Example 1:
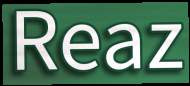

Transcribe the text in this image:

Reaz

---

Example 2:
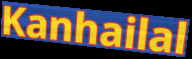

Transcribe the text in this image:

Kanhailal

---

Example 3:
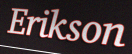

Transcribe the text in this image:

Erikson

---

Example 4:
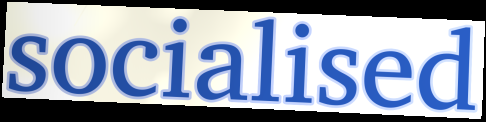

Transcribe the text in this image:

socialised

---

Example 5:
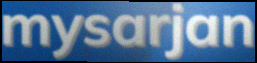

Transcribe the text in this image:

mysarjan